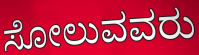
ಸೋಲುವವರು